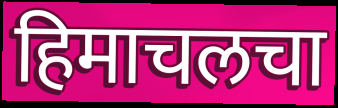
हिमाचलचा